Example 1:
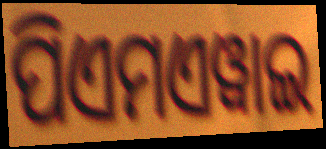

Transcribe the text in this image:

ପିଏମଏୱାଇ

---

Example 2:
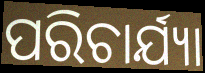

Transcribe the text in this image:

ପରିଚାର୍ଯ୍ୟା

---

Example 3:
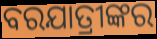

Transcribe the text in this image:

ବରଯାତ୍ରୀଙ୍କର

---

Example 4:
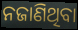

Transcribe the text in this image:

ନଜାଣିଥିବା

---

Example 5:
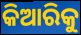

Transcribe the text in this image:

କିଆରିକୁ